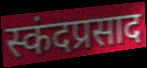
स्कंदप्रसाद